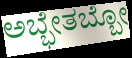
ಅಬ್ಭೇತಬ್ಬೋ